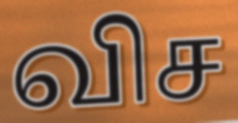
விச